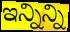
ఇన్నిన్ని